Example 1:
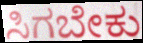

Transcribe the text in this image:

ಸಿಗಬೇಕು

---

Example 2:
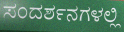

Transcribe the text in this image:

ಸಂದರ್ಶನಗಳಲ್ಲಿ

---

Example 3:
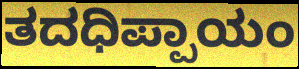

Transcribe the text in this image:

ತದಧಿಪ್ಪಾಯಂ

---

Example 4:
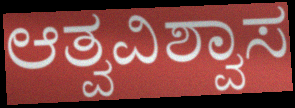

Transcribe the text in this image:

ಆತ್ವವಿಶ್ವಾಸ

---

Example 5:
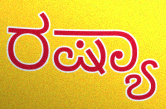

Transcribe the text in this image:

ರಷ್ಯಾ